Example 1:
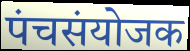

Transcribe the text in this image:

पंचसंयोजक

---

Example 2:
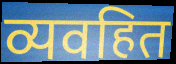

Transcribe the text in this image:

व्यवहित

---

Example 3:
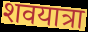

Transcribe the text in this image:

शवयात्रा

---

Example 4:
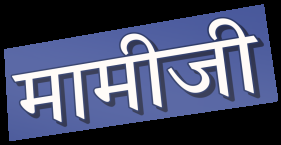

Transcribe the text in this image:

मामीजी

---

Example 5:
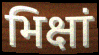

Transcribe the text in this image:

भिक्षां